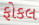
ફોકલ